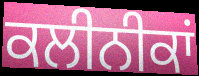
ਕਲੀਨੀਕਾਂ